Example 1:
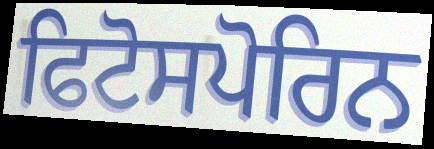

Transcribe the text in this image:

ਫਿਟੋਸਪੋਰਿਨ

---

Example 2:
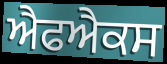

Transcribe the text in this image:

ਐਫਐਕਸ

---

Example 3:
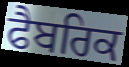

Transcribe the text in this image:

ਫੈਬਰਿਕ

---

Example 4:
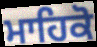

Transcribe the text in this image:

ਮਾਹਿਕੋ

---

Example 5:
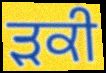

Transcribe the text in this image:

ੜਕੀ